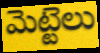
మెట్టెలు